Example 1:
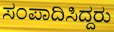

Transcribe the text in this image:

ಸಂಪಾದಿಸಿದ್ದರು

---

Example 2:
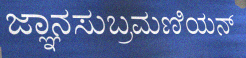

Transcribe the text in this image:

ಜ್ಞಾನಸುಬ್ರಮಣಿಯನ್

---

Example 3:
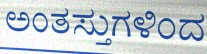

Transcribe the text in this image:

ಅಂತಸ್ತುಗಳಿಂದ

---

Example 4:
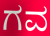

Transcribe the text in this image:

ಗವ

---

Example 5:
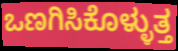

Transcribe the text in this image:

ಒಣಗಿಸಿಕೊಳ್ಳುತ್ತ